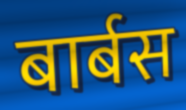
बार्बस